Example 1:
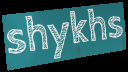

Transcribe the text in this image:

shykhs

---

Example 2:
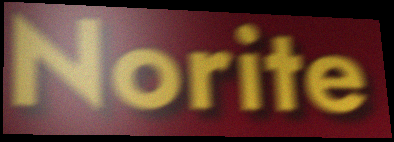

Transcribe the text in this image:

Norite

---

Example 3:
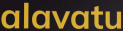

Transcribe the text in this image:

alavatu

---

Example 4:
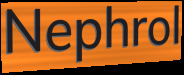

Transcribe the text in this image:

Nephrol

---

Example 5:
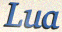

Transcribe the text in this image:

Lua